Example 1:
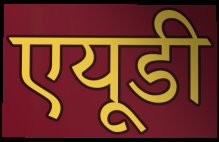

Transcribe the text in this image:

एयूडी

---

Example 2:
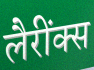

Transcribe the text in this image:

लैरींक्स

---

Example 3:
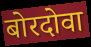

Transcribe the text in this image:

बोरदोवा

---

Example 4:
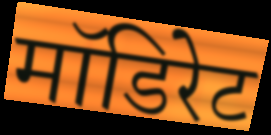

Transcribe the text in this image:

मॉडिरेट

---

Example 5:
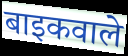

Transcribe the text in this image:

बाइकवाले